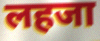
लहजा